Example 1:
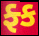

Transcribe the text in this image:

ફ્ક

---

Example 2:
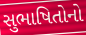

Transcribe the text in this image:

સુભાષિતોનો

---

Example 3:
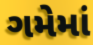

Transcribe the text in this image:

ગમેમાં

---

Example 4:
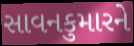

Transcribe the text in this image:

સાવનકુમારને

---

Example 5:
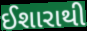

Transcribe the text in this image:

ઈશારાથી